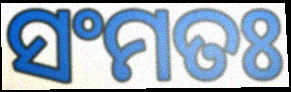
ସଂମତଃ